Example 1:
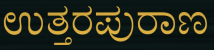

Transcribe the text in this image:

ಉತ್ತರಪುರಾಣ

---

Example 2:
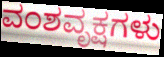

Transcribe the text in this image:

ವಂಶವೃಕ್ಷಗಳು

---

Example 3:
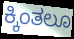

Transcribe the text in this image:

ಕ್ಕಿಂತಲೂ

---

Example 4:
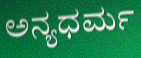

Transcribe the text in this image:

ಅನ್ಯಧರ್ಮ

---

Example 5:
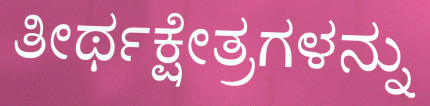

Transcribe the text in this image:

ತೀರ್ಥಕ್ಷೇತ್ರಗಳನ್ನು